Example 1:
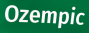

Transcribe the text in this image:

Ozempic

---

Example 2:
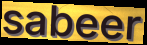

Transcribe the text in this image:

sabeer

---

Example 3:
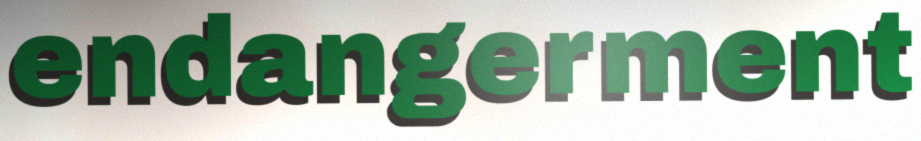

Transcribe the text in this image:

endangerment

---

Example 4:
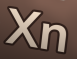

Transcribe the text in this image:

Xn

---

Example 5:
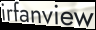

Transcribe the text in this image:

irfanview